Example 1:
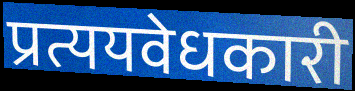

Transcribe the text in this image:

प्रत्ययवेधकारी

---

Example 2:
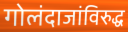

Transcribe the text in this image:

गोलंदाजांविरुद्ध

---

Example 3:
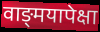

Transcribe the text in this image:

वाङ्मयापेक्षा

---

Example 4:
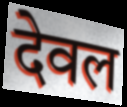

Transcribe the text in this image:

देवल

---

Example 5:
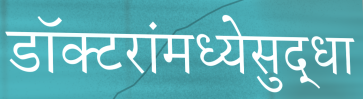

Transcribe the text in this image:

डॉक्टरांमध्येसुद्धा